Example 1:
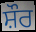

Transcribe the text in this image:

ਸ਼ੌਰ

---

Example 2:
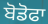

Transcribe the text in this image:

ਬੋਡੋਫਾ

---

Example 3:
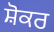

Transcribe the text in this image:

ਸ਼ੋਕਰ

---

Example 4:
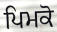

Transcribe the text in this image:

ਪਿਮਕੋ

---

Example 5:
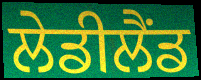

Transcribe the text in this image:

ਲੇਡੀਲੈਂਡ